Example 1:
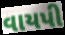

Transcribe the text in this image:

વાયપી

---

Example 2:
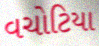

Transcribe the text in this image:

વચોટિયા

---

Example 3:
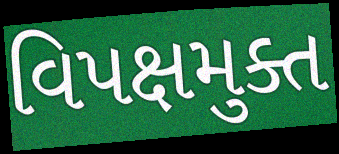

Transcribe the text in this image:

વિપક્ષમુક્ત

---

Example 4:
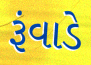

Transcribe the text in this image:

રૂંવાડે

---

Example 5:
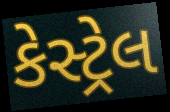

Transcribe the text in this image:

કેસ્ટ્રેલ